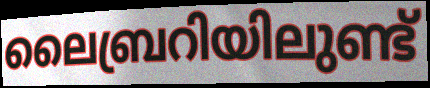
ലൈബ്രറിയിലുണ്ട്